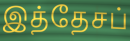
இத்தேசப்